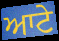
ਆਟੇ